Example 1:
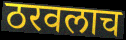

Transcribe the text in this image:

ठरवलाच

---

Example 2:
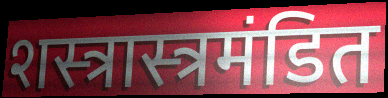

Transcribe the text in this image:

शस्त्रास्त्रमंडित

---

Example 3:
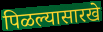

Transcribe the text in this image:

पिळल्यासारखे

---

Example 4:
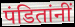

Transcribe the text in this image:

पंडितांनीं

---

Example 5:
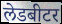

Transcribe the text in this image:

लेडबीटर